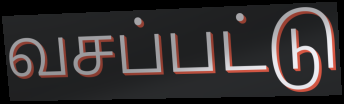
வசப்பட்டு